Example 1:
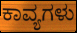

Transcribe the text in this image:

ಕಾವ್ಯಗಳು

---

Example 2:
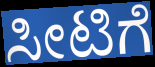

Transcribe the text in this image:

ಸೀಟಿಗೆ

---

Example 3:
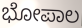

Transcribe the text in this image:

ಭೋಪಾಲ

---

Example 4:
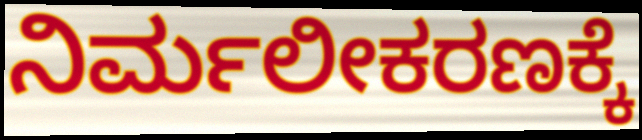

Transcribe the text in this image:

ನಿರ್ಮಲೀಕರಣಕ್ಕೆ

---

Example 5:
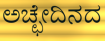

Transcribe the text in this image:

ಅಚ್ಛೇದಿನದ